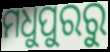
ମଧୁପୁରରୁ